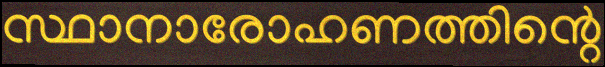
സ്ഥാനാരോഹണത്തിന്റെ